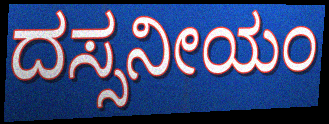
ದಸ್ಸನೀಯಂ